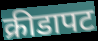
क्रीडापट